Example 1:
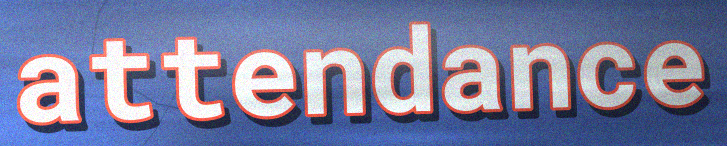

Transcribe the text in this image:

attendance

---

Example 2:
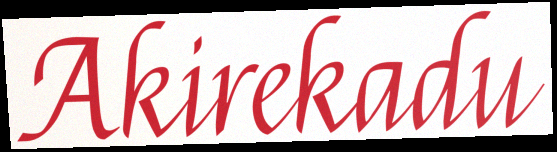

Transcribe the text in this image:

Akirekadu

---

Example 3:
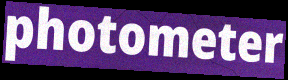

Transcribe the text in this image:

photometer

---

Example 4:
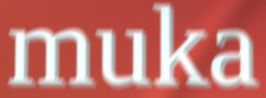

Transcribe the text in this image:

muka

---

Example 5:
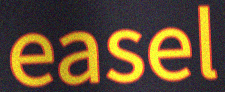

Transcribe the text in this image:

easel